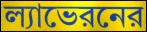
ল্যাভেরনের